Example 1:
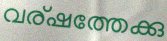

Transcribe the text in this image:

വര്ഷത്തേക്കു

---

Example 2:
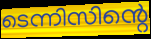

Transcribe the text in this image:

ടെന്നിസിന്റെ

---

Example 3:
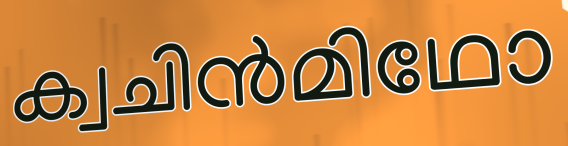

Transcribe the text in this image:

ക്വചിൻമിഥോ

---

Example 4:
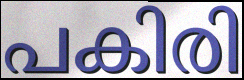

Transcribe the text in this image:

പകിരി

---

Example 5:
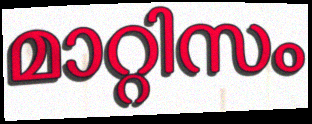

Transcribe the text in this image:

മാറ്റിസം